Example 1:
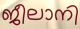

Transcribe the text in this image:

ജീലാനി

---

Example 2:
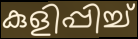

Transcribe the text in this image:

കുളിപ്പിച്ച്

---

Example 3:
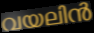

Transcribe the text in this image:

വയലിൻ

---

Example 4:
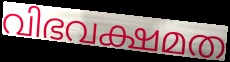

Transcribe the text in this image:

വിഭവക്ഷമത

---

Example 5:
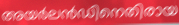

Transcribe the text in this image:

അയർലൻഡിനെതിരായ